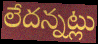
లేదన్నట్లు